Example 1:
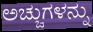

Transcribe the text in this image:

ಅಚ್ಚುಗಳನ್ನು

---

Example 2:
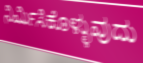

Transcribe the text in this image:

ನಿರ್ಮಿಸಿಕೊಳ್ಳುವುದು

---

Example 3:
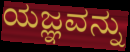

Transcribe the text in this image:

ಯಜ್ಞವನ್ನು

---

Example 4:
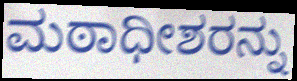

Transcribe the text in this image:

ಮಠಾಧೀಶರನ್ನು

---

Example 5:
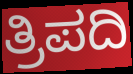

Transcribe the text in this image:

ತ್ರಿಪದಿ